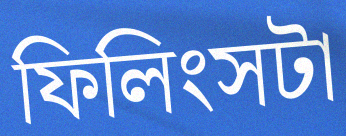
ফিলিংসটা